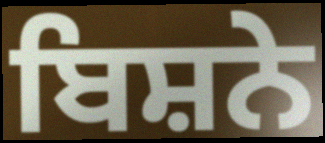
ਬਿਸ਼ਨੇ